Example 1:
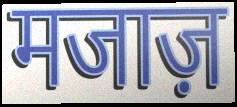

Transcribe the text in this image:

मजाज़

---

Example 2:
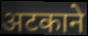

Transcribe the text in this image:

अटकाने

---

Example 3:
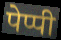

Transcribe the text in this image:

पेप्पी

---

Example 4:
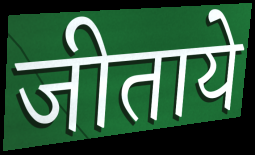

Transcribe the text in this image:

जीताये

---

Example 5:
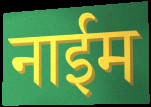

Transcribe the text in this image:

नाईम